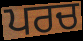
ਪਰਚ